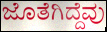
ಜೊತೆಗಿದ್ದೆವು